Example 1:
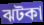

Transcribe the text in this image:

ঝটকা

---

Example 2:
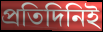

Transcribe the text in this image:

প্রতিদিনিই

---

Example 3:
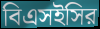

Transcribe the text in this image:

বিএসইসির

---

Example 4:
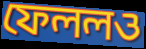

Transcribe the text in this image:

ফেললও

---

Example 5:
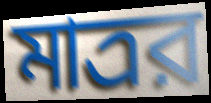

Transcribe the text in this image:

মাত্রর